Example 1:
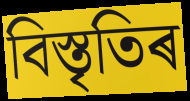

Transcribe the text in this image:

বিস্তৃতিৰ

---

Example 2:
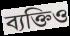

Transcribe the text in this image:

ব্যক্তিও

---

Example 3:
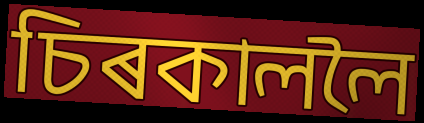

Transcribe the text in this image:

চিৰকাললৈ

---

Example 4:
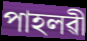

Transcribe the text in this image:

পাহলৱী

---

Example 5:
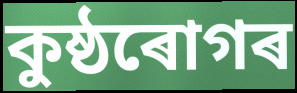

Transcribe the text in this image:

কুষ্ঠৰোগৰ